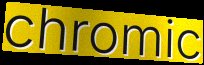
chromic